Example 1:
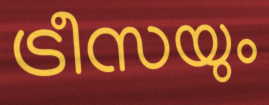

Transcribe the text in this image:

ട്രീസയും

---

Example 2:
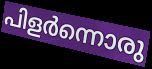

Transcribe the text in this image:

പിളർന്നൊരു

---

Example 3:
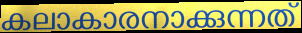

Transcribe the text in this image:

കലാകാരനാക്കുന്നത്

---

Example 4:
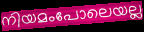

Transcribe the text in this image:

നിയമംപോലെയല്ല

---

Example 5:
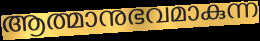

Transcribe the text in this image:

ആത്മാനുഭവമാകുന്ന